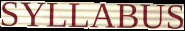
SYLLABUS